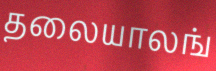
தலையாலங்